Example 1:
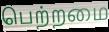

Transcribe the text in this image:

பெற்றமை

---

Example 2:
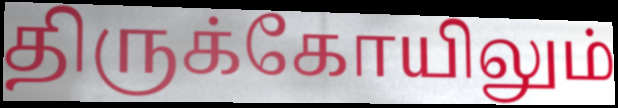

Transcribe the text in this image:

திருக்கோயிலும்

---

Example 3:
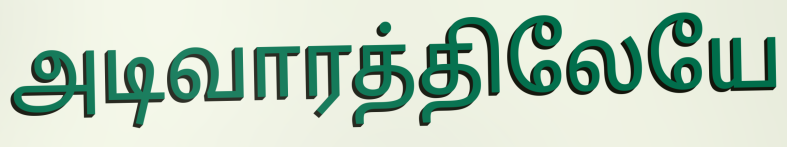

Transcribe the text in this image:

அடிவாரத்திலேயே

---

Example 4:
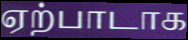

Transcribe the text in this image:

ஏற்பாடாக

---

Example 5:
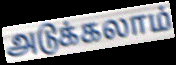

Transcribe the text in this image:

அடுக்கலாம்